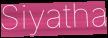
Siyatha